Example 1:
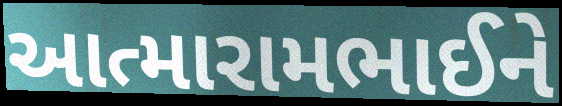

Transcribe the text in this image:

આત્મારામભાઈને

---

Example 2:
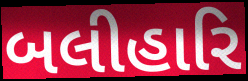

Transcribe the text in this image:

બલીહારિ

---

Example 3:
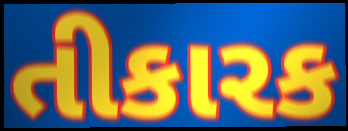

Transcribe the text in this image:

તીકારક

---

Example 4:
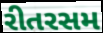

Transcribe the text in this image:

રીતરસમ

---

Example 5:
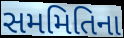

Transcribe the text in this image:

સમમિતિના